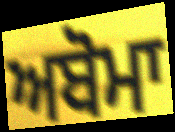
ਅਬੋਮਾ